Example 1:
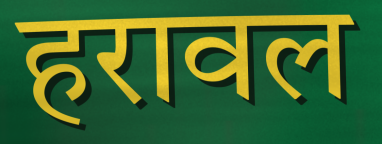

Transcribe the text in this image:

हरावल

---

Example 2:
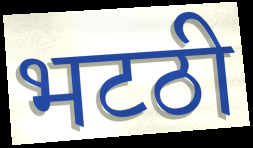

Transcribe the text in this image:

भटठी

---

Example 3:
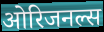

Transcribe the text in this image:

ओरिजनल्स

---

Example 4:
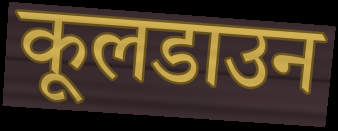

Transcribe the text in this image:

कूलडाउन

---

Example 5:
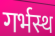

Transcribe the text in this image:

गर्भस्थ